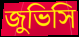
জুভিসি